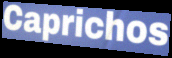
Caprichos